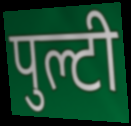
पुल्टी